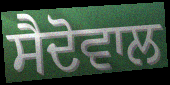
ਸੈਦੋਵਾਲ